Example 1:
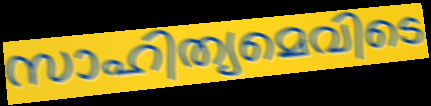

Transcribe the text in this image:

സാഹിത്യമെവിടെ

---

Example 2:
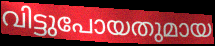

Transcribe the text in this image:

വിട്ടുപോയതുമായ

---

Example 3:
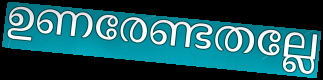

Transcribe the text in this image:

ഉണരേണ്ടതല്ലേ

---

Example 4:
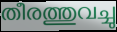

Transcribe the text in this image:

തീരത്തുവച്ചു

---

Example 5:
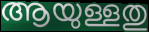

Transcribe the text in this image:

ആയുള്ളതു